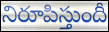
నిరూపిస్తుందీ